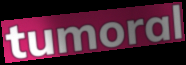
tumoral